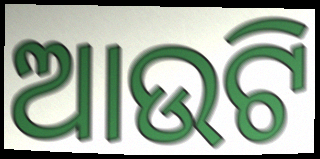
ଆଉଟି